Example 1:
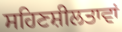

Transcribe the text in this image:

ਸਹਿਣਸ਼ੀਲਤਾਵਾਂ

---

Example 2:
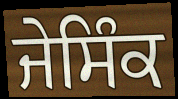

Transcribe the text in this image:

ਜੇਸਿੰਕ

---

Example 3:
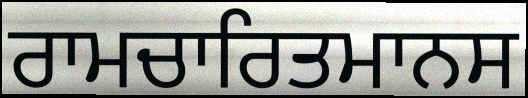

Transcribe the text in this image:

ਰਾਮਚਾਰਿਤਮਾਨਸ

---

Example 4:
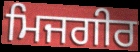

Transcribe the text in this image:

ਮਿਜਗੀਰ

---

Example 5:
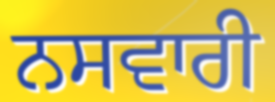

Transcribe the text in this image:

ਨਸਵਾਰੀ